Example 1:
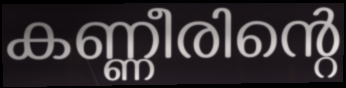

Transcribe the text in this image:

കണ്ണീരിന്റെ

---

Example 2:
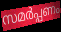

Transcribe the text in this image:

സമർപ്പണം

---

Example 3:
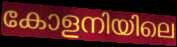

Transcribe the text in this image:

കോളനിയിലെ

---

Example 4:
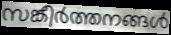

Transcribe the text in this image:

സങ്കീർത്തനങ്ങൾ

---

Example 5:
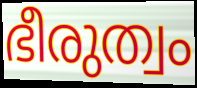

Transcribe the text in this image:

ഭീരുത്വം